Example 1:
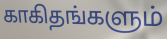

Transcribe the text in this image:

காகிதங்களும்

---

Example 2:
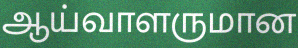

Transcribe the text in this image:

ஆய்வாளருமான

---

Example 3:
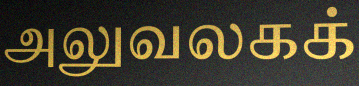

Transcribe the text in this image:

அலுவலகக்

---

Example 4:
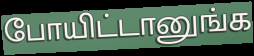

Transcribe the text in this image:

போயிட்டானுங்க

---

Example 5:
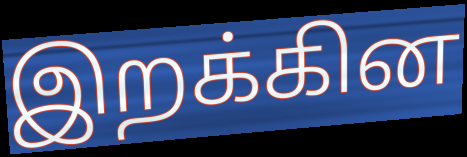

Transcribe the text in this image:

இறக்கின